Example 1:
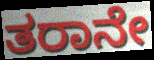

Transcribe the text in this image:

ತರಾನೇ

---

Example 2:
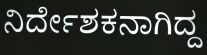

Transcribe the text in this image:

ನಿರ್ದೇಶಕನಾಗಿದ್ದ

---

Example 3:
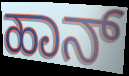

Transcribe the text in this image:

ಹಾನ್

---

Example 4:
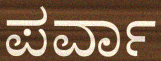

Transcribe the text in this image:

ಪರ್ವಾ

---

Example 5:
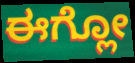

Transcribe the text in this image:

ಈಗ್ಲೋ